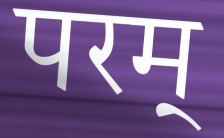
परम्